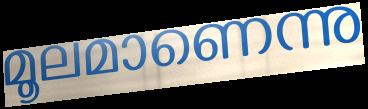
മൂലമാണെന്നു